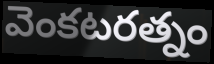
వెంకటరత్నం